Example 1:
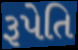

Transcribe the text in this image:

રૂપેતિ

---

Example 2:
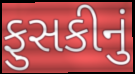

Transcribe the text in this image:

ફુસકીનું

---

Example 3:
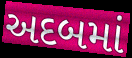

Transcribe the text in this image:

અદબમાં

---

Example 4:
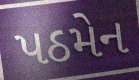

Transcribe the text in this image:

પઠમેન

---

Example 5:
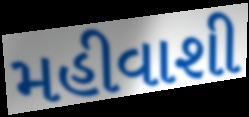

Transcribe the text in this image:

મહીવાશી